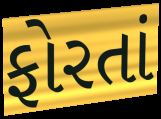
ફોરતાં